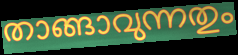
താങ്ങാവുന്നതും